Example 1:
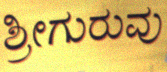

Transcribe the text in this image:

ಶ್ರೀಗುರುವು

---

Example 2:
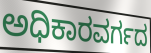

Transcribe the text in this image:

ಅಧಿಕಾರವರ್ಗದ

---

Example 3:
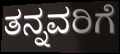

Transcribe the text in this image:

ತನ್ನವರಿಗೆ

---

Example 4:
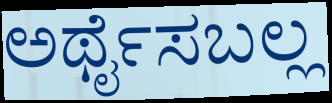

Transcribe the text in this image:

ಅರ್ಥೈಸಬಲ್ಲ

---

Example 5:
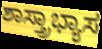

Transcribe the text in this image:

ಶಾಸ್ತ್ರಾಭ್ಯಾಸ